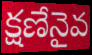
క్షణేనైవ